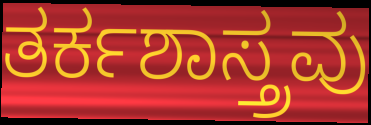
ತರ್ಕಶಾಸ್ತ್ರವು